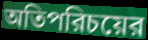
অতিপরিচয়ের